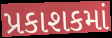
પ્રકાશકમાં